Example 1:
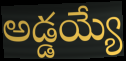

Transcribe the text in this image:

అడ్డయ్యే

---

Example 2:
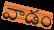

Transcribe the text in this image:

వాడం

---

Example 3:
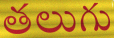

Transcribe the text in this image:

తలుగు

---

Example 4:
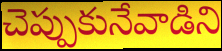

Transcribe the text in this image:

చెప్పుకునేవాడిని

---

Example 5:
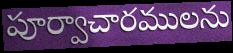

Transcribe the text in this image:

పూర్వాచారములను